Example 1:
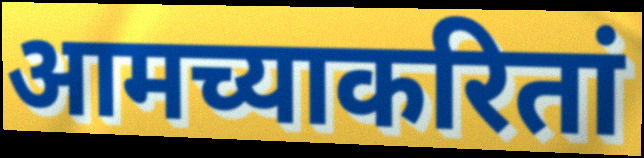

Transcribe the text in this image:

आमच्याकरितां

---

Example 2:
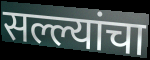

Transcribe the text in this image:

सल्ल्यांचा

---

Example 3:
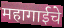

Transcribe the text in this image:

महागाईचे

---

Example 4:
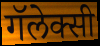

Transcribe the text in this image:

गॅलेक्सी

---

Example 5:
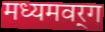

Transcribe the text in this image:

मध्यमवर्ग